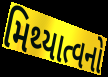
મિથ્યાત્વનો